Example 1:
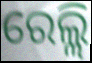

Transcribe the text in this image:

ରେଲ୍ଲି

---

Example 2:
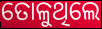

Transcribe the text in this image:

ତୋଳୁଥିଲେ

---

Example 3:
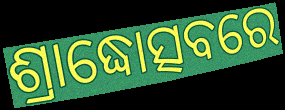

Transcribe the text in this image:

ଶ୍ରାଦ୍ଧୋତ୍ସବରେ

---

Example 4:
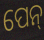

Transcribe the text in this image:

ପେନ୍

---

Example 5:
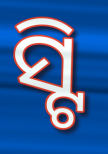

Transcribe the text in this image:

ସ୍ଟି